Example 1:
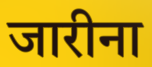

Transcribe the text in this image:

जारीना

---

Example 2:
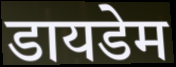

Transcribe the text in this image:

डायडेम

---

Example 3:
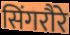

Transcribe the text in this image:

सिंगरौरे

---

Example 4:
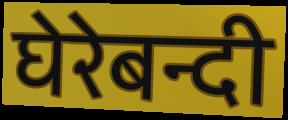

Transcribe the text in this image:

घेरेबन्दी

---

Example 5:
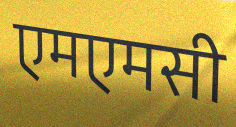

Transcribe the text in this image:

एमएमसी